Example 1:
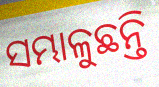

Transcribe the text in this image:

ସମ୍ଭାଳୁଛନ୍ତି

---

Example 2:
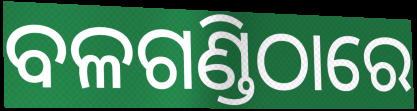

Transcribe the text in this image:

ବଳଗଣ୍ଡିଠାରେ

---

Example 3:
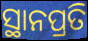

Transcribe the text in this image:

ସ୍ଥାନପ୍ରତି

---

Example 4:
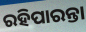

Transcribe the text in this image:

ରହିପାରନ୍ତା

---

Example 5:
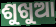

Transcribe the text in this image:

ଶୁଖୁଆ